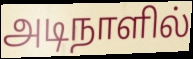
அடிநாளில்